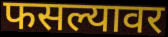
फसल्यावर